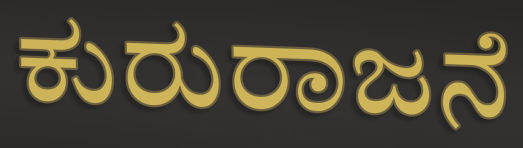
ಕುರುರಾಜನೆ